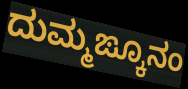
ದುಮ್ಮಙ್ಕೂನಂ